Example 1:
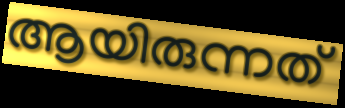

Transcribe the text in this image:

ആയിരുന്നത്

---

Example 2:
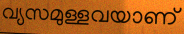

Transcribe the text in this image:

വ്യസമുള്ളവയാണ്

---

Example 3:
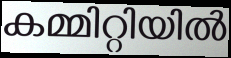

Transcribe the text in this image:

കമ്മിറ്റിയിൽ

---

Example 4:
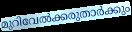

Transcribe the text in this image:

മുറിവേൽക്കരുതാർക്കും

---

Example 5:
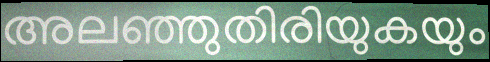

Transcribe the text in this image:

അലഞ്ഞുതിരിയുകയും